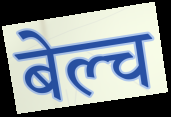
बेल्च